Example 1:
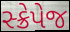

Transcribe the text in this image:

સ્ક્રેપેજ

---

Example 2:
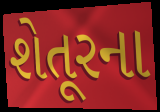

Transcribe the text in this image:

શેતૂરના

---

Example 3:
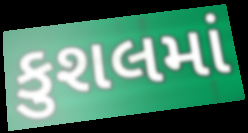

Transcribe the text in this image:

કુશલમાં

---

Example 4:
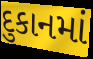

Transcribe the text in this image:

દુકાનમાં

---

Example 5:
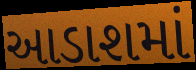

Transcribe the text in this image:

આડાશમાં